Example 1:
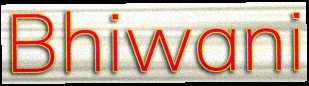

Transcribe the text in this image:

Bhiwani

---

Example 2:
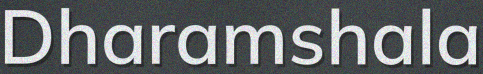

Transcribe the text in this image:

Dharamshala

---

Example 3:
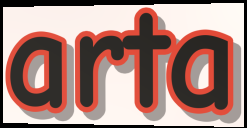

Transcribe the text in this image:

arta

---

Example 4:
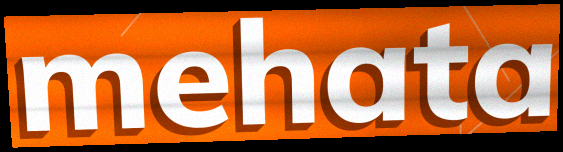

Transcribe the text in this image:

mehata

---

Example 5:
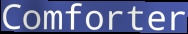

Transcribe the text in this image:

Comforter